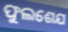
ଫୁଲଶେଯ